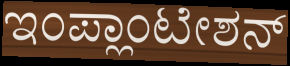
ಇಂಪ್ಲಾಂಟೇಶನ್